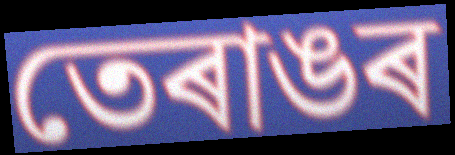
তেৰাঙৰ